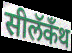
सीलॅकँथ